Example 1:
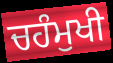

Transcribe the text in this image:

ਚਹੰਮੁਖੀ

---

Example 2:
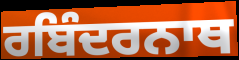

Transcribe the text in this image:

ਰਬਿੰਦਰਨਾਥ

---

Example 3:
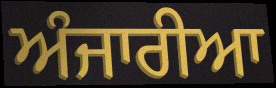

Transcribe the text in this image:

ਅੰਜਾਰੀਆ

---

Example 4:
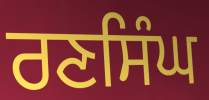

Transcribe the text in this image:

ਰਣਸਿੰਘ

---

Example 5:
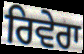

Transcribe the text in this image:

ਰਿਵੇਰਾ